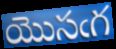
యొసఁగ